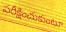
పరీక్షించుకుంటూ